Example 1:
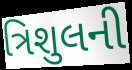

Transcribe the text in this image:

ત્રિશુલની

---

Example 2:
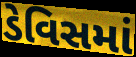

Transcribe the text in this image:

ડેવિસમાં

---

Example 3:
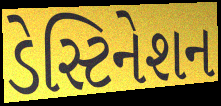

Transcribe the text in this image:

ડેસ્ટિનેશન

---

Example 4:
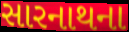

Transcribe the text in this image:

સારનાથના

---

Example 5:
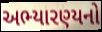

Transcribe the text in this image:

અભ્યારણ્યનો